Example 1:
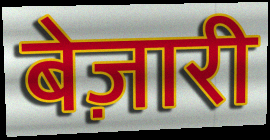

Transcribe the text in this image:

बेज़ारी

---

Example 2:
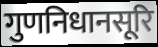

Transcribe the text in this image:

गुणनिधानसूरि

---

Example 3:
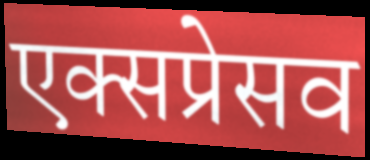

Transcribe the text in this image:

एक्सप्रेसव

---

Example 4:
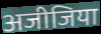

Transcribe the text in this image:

अजीजिया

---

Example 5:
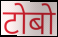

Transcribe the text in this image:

टोबो